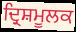
ਦ੍ਰਿਸ਼ਮੂਲਕ